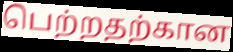
பெற்றதற்கான